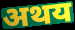
अथय